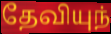
தேவியுந்